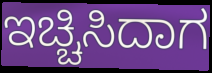
ಇಚ್ಚಿಸಿದಾಗ